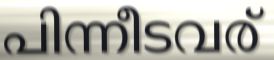
പിന്നീടവര്